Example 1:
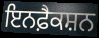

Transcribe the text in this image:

ਇਨਫ਼ੈਕਸ਼ਨ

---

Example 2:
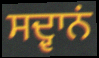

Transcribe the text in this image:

ਸਦ੍ਦਾਨਂ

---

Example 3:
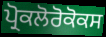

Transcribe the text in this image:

ਪ੍ਰੋਕਲੋਰੋਕੋਕਸ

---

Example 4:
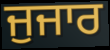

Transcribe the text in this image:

ਜੁਜਾਰ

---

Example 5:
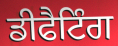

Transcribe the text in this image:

ਡੀਫੈਟਿੰਗ